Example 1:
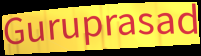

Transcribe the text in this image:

Guruprasad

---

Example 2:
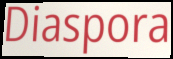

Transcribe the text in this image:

Diaspora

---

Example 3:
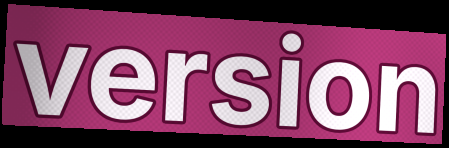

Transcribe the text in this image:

version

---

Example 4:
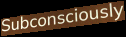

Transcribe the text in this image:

Subconsciously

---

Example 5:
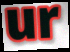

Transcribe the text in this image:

ur